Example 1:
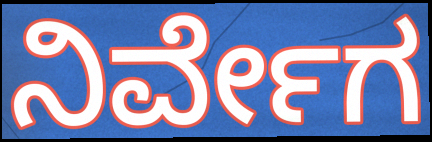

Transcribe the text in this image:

ನಿರ್ವೇಗ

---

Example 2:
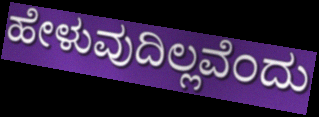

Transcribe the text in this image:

ಹೇಳುವುದಿಲ್ಲವೆಂದು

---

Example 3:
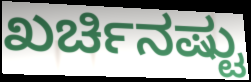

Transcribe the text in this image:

ಖರ್ಚಿನಷ್ಟು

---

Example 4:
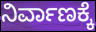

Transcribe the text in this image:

ನಿರ್ವಾಣಕ್ಕೆ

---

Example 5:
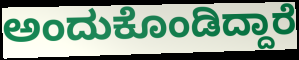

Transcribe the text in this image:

ಅಂದುಕೊಂಡಿದ್ದಾರೆ